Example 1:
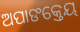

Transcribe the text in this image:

ଅପାଙକ୍ତେୟ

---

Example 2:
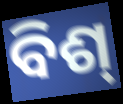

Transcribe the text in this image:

ବିଶ୍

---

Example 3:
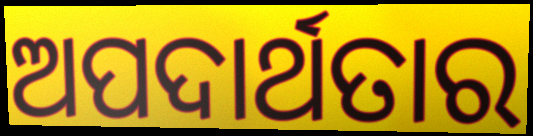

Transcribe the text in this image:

ଅପଦାର୍ଥତାର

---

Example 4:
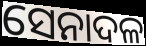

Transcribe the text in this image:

ସେନାଦଳ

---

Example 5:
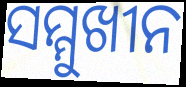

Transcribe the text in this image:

ସମ୍ମୁଖୀନ